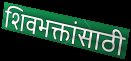
शिवभक्तांसाठी